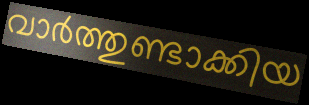
വാർത്തുണ്ടാക്കിയ